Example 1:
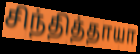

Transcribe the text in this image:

சிந்தித்தாயா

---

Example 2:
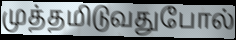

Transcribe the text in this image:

முத்தமிடுவதுபோல்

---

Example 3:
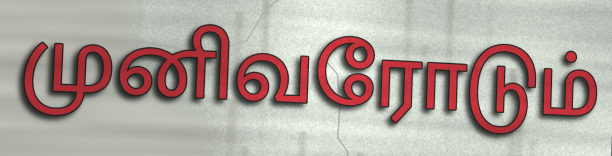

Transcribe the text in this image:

முனிவரோடும்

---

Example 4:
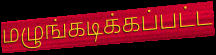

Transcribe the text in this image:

மழுங்கடிக்கப்பட்ட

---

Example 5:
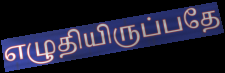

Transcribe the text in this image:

எழுதியிருப்பதே